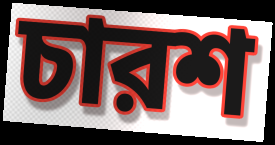
চারশ